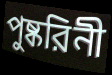
পুষ্করিনী